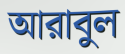
আরাবুল